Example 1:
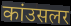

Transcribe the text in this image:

कांउसलर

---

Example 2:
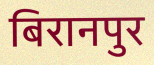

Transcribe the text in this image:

बिरानपुर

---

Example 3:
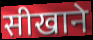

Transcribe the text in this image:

सीखाने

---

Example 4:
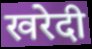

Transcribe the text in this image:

खरेदी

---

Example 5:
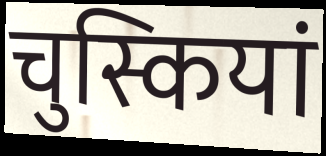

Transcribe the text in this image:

चुस्कियां